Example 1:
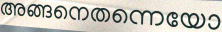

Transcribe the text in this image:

അങ്ങനെതന്നെയോ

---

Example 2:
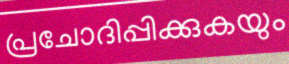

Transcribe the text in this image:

പ്രചോദിപ്പിക്കുകയും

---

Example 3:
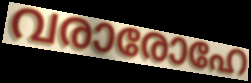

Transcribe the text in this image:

വരാരോഹേ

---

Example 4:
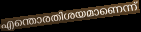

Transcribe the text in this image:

എന്തൊരതിശയമാണെന്ന്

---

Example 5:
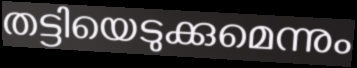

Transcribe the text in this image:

തട്ടിയെടുക്കുമെന്നും